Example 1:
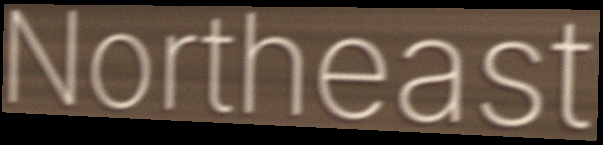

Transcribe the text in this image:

Northeast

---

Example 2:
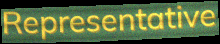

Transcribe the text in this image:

Representative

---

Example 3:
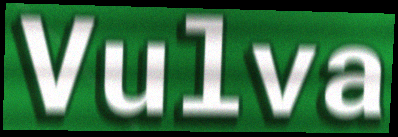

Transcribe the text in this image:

Vulva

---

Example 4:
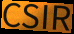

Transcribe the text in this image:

CSIR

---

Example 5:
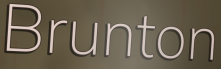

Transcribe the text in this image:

Brunton